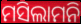
ମସିଲାମନି